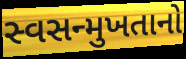
સ્વસન્મુખતાનો